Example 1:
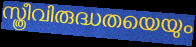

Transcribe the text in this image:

സ്ത്രീവിരുദ്ധതയെയും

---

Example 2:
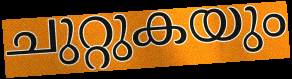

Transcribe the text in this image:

ചുറ്റുകയും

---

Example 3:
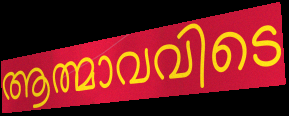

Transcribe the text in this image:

ആത്മാവവിടെ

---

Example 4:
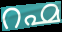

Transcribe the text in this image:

റഹ്മ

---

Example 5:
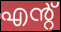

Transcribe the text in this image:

എന്റ്